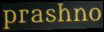
prashno